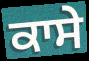
ਕਾਸੇ